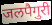
जलपैगुरी